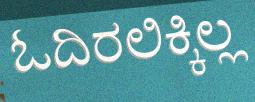
ಓದಿರಲಿಕ್ಕಿಲ್ಲ